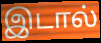
இடால்